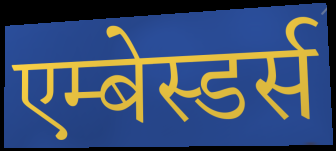
एम्बेस्डर्स